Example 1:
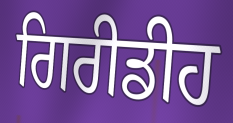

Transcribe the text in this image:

ਗਿਰੀਡੀਹ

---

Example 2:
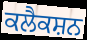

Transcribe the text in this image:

ਕਲੈਕਸ਼ਨ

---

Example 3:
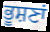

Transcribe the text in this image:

ਭੂਸ਼ਣਾਂ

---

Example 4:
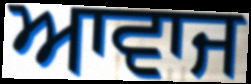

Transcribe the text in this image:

ਆਵਾਜ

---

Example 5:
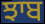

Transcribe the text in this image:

ਝਾਬ